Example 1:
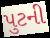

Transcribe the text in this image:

પુટની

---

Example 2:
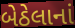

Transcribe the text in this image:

બેઠેલાનાં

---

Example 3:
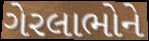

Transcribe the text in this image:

ગેરલાભોને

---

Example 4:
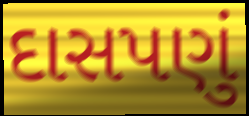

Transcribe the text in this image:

દાસપણું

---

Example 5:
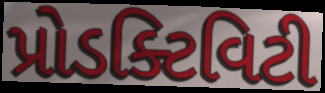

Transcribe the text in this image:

પ્રોડક્ટિવિટી